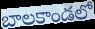
బాలకాండలో